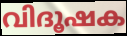
വിദൂഷക